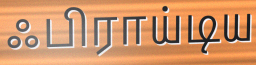
ஃபிராய்டிய